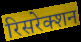
रिसरेक्शन